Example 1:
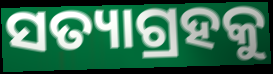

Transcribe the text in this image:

ସତ୍ୟାଗ୍ରହକୁ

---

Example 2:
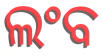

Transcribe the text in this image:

ଲଂବ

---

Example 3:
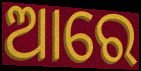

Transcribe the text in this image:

ଆରେ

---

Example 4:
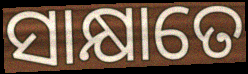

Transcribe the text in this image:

ସାକ୍ଷାତେ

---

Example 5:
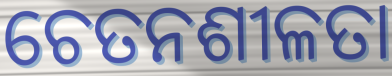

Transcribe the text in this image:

ଚେତନଶୀଳତା